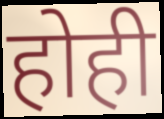
होही